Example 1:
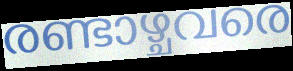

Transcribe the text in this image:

രണ്ടാഴ്ചവരെ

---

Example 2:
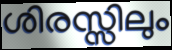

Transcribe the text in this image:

ശിരസ്സിലും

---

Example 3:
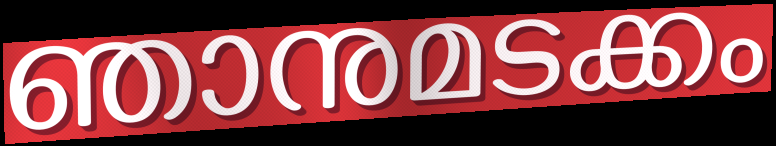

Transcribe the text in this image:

ഞാനുമടക്കം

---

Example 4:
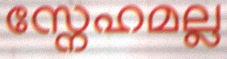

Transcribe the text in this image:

സ്നേഹമല്ല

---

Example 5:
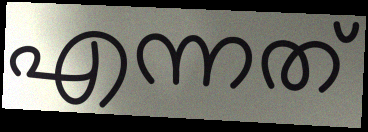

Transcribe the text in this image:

എന്നത്